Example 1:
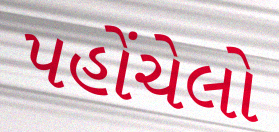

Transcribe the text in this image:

પહોંચેલો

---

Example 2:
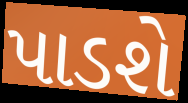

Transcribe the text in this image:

પાડશે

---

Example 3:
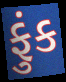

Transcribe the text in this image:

ફુંક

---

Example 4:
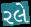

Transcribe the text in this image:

રલે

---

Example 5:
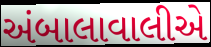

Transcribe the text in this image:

અંબાલાવાલીએ